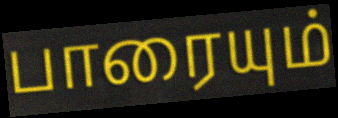
பாரையும்